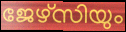
ജേഴ്സിയും